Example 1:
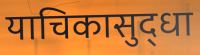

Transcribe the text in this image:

याचिकासुद्धा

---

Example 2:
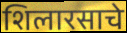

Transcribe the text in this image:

शिलारसाचे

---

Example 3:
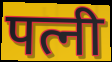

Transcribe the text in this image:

पत्नी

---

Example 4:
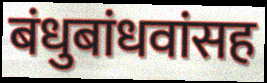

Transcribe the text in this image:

बंधुबांधवांसह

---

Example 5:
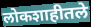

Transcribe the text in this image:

लोकशाहीतले